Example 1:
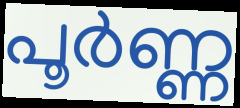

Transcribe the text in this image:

പൂർണ്ണ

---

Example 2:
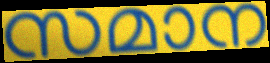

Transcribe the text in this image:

സമാന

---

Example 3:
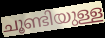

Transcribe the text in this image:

ചൂണ്ടിയുള്ള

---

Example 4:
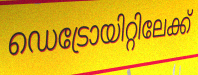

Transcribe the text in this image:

ഡെട്രോയിറ്റിലേക്ക്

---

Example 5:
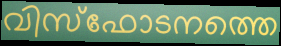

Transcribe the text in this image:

വിസ്ഫോടനത്തെ